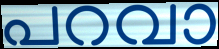
പറവാ